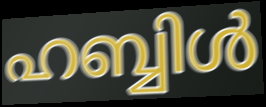
ഹബ്ബിൾ